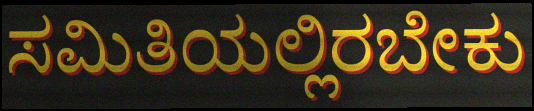
ಸಮಿತಿಯಲ್ಲಿರಬೇಕು